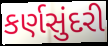
કર્ણસુંદરી